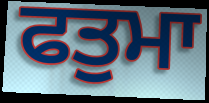
ਫਤੁਮਾ